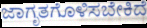
ಜಾಗೃತಗೊಳಿಸಬೇಕಿದೆ